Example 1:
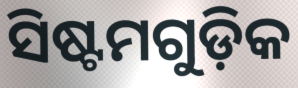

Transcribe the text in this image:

ସିଷ୍ଟମଗୁଡ଼ିକ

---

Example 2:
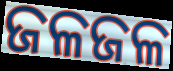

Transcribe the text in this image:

ଜଳଜଳ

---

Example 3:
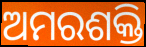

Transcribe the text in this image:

ଅମରଶକ୍ତି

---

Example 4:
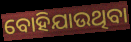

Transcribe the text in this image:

ବୋହିଯାଉଥିବା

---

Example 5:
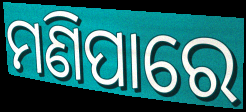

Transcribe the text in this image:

ମଣିପାରେ